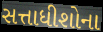
સત્તાધીશોના